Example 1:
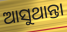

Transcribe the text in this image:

ଆସୁଥାନ୍ତା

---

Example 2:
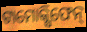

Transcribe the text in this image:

ଟାମୋକ୍ସିଫେନ୍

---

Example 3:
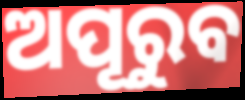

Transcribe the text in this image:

ଅପୂରୁବ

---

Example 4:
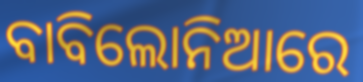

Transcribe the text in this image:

ବାବିଲୋନିଆରେ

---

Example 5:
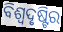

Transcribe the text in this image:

ବିଶ୍ୱଦୃଷ୍ଟିର